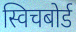
स्विचबोर्ड